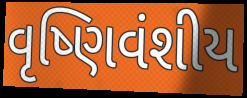
વૃષ્ણિવંશીય